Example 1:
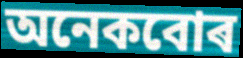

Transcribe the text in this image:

অনেকবোৰ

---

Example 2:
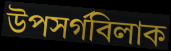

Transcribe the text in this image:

উপসৰ্গবিলাক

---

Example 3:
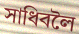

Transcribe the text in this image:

সাধিবলৈ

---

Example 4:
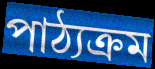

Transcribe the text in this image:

পাঠ্যক্ৰম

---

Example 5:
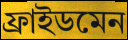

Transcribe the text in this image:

ফ্ৰাইডমেন